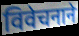
विवेचनाने